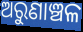
ଅରୁଣାଞ୍ଚଳ